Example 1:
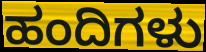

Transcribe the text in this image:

ಹಂದಿಗಳು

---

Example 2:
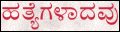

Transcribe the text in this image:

ಹತ್ಯೆಗಳಾದವು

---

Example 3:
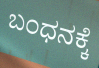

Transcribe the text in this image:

ಬಂಧನಕ್ಕೆ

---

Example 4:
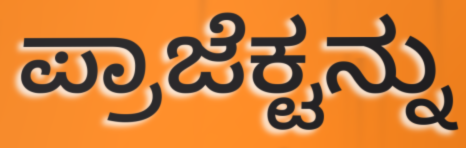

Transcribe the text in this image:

ಪ್ರಾಜೆಕ್ಟನ್ನು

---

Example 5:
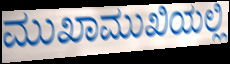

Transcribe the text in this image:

ಮುಖಾಮುಖಿಯಲ್ಲಿ